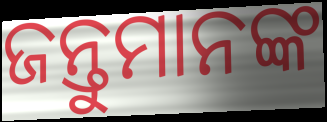
ଜନ୍ତୁମାନଙ୍କ